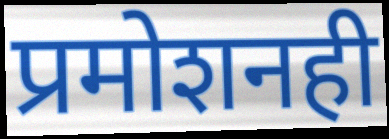
प्रमोशनही